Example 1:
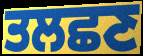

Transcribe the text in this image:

ਤਲਛਣ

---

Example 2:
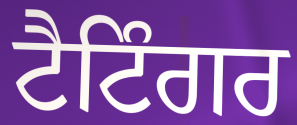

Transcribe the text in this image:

ਟੈਟਿੰਗਰ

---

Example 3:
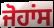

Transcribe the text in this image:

ਜੋਹਾਂਸ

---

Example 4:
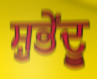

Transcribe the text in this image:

ਸ਼ੁਭੇਂਦੂ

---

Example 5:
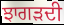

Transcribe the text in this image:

ਝਾਗੜਦੀ